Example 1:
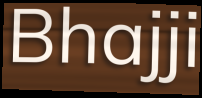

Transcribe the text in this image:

Bhajji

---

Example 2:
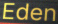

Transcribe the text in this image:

Eden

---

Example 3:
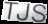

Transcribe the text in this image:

TJS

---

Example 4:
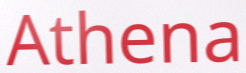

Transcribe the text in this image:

Athena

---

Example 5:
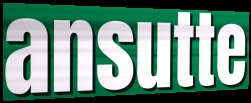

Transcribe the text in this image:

ansutte